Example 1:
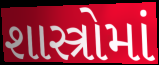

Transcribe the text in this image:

શાસ્ત્રોમાં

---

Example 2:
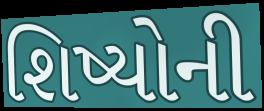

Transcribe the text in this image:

શિષ્યોની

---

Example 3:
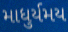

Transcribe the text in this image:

માધુર્યમય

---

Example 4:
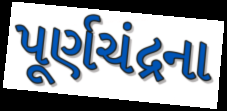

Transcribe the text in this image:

પૂર્ણચંદ્રના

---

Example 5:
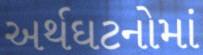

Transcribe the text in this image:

અર્થઘટનોમાં